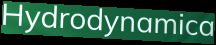
Hydrodynamica